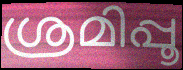
ശ്രമിപ്പൂ